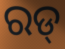
ରଡ୍